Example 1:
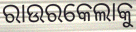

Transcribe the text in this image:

ରାଉରକେଲାକୁ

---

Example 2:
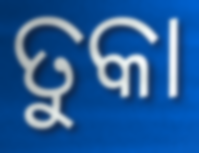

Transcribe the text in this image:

ତୁକା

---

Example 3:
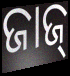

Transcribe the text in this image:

ଜାଜ୍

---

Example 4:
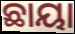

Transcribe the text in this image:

ଛାୟା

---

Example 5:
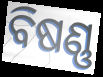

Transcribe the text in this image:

ବିଷଣ୍ଣ